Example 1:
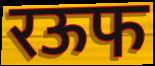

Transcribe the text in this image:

रऊफ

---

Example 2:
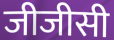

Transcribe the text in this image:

जीजीसी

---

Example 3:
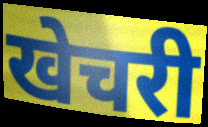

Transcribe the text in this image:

खेचरी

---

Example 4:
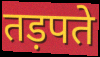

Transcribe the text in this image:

तड़पते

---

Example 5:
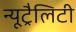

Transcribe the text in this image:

न्यूट्रैलिटी